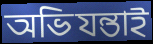
অভিযন্তাই